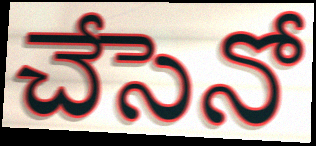
చేసెనో